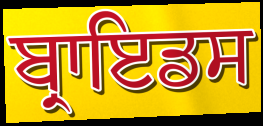
ਬ੍ਰਾਇਡਸ